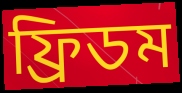
ফ্রিডম